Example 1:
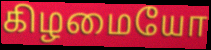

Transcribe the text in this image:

கிழமையோ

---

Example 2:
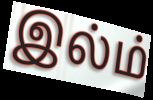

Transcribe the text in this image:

இல்ம்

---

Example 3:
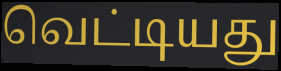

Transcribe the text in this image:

வெட்டியது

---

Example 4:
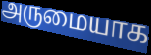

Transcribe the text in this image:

அருமையாக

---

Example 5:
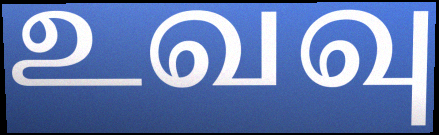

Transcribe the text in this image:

உவவு